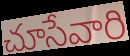
చూసేవారి